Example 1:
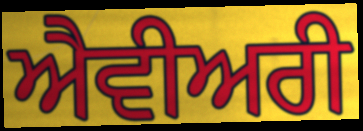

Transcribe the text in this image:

ਐਵੀਅਰੀ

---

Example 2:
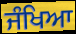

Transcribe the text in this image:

ਜੰਖਿਆ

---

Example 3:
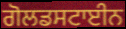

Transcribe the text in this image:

ਗੋਲਡਸਟਾਈਨ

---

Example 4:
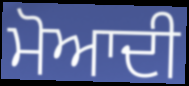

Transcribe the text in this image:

ਮੋਆਦੀ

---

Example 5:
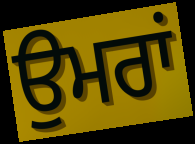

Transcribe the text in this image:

ਉਮਰਾਂ